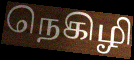
நெகிழி